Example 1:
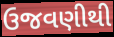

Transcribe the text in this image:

ઉજવણીથી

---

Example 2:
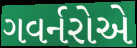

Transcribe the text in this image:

ગવર્નરોએ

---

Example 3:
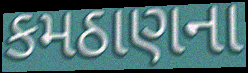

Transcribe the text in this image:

કમઠાણના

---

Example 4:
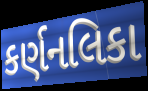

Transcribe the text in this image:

કર્ણનલિકા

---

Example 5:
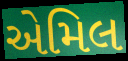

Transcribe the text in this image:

એમિલ